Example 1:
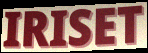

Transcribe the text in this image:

IRISET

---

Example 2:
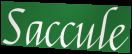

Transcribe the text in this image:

Saccule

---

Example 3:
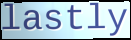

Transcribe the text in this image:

lastly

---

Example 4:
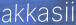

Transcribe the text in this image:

akkasii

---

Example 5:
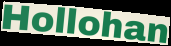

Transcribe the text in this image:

Hollohan